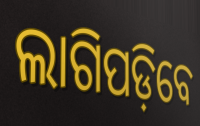
ଲାଗିପଡ଼ିବେ